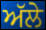
ਅੱਲੇ